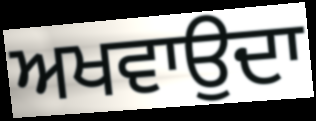
ਅਖਵਾਉਦਾ